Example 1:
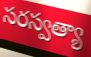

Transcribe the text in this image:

సరస్వత్యా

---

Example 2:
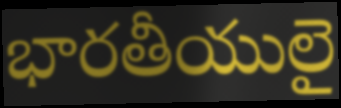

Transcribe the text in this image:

భారతీయులై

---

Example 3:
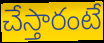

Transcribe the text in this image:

చేస్తారంటే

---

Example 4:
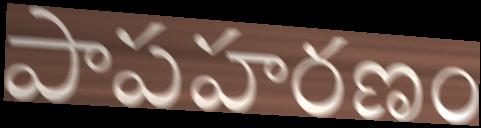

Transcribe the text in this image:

పాపహరణం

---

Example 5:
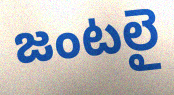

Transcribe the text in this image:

జంటలై